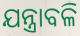
ଯନ୍ତ୍ରାବଳି